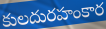
కులదురహంకార